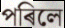
পৰিলে